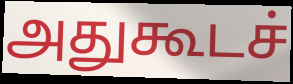
அதுகூடச்